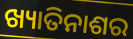
ଖ୍ୟାତିନାଶର